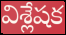
విశ్లేషక